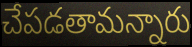
చేపడతామన్నారు